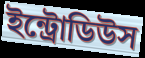
ইন্ট্রোডিউস